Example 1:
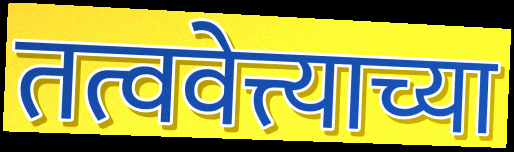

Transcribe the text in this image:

तत्ववेत्त्याच्या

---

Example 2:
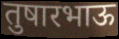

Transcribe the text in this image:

तुषारभाऊ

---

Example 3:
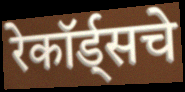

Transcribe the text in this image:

रेकॉर्ड्सचे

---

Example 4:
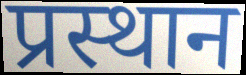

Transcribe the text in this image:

प्रस्थान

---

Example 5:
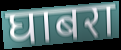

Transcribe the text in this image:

घाबरा